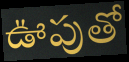
ఊపుతో